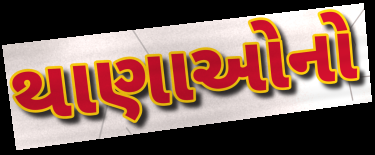
થાણાઓનો